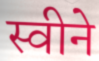
स्वीने